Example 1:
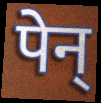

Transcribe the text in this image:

पेन्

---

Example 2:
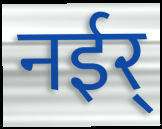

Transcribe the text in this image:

नईर्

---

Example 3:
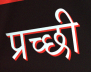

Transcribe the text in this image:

प्रच्छी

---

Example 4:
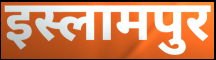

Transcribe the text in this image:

इस्लामपुर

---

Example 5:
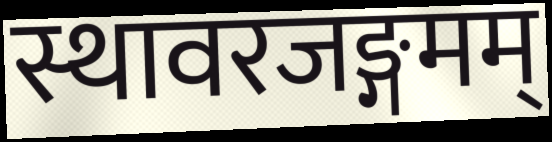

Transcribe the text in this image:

स्थावरजङ्गमम्